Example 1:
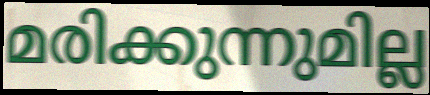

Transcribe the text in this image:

മരിക്കുന്നുമില്ല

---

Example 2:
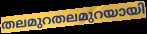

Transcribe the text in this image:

തലമുറതലമുറയായി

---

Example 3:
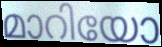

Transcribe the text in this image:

മാറിയോ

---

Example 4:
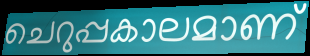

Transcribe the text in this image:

ചെറുപ്പകാലമാണ്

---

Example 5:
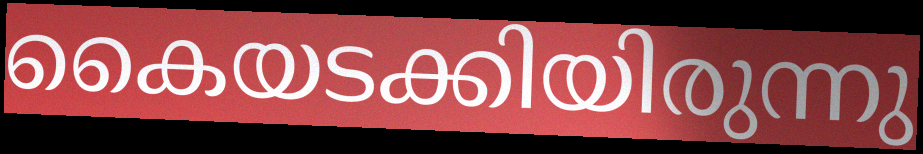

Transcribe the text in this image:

കൈയടക്കിയിരുന്നു